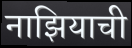
नाझियाची